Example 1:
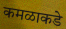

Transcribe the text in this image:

कमळाकडे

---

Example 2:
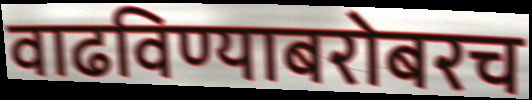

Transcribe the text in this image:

वाढविण्याबरोबरच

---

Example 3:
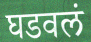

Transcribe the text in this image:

घडवलं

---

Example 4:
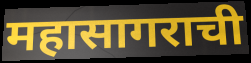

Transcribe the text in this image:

महासागराची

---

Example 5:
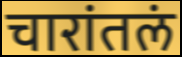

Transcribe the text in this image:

चारांतलं